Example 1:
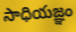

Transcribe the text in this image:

సాధియజ్ఞం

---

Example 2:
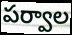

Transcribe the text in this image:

పర్వాల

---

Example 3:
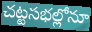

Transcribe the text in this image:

చట్టసభల్లోనూ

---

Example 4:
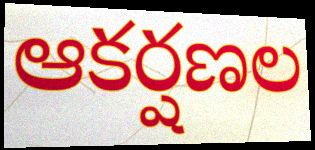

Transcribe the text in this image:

ఆకర్షణల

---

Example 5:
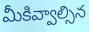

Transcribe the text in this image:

మీకివ్వాల్సిన